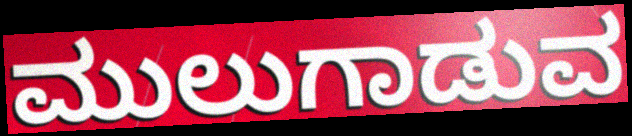
ಮುಲುಗಾಡುವ